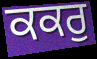
ਕਕਰੁ